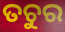
ତଚୁର